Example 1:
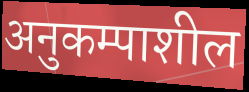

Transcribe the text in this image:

अनुकम्पाशील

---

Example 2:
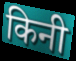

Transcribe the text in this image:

किनी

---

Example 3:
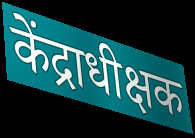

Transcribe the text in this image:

केंद्राधीक्षक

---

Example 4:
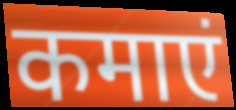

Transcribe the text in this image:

कमाएं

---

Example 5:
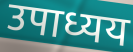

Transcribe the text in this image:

उपाध्यय